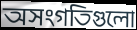
অসংগতিগুলো